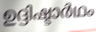
ഉദ്ദിഷ്ടാർഥം